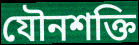
যৌনশক্তি